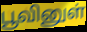
பூவினுள்